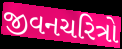
જીવનચરિત્રો